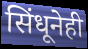
सिंधूनेही